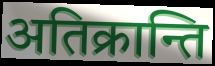
अतिक्रान्ति